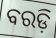
ବରଡ଼ି